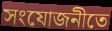
সংযোজনীতে